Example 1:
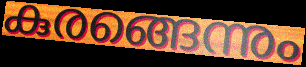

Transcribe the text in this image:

കുരങ്ങെന്നും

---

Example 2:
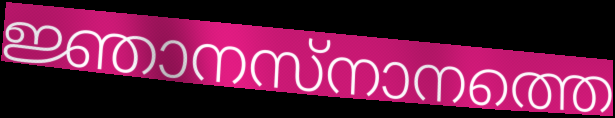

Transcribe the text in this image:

ജ്ഞാനസ്നാനത്തെ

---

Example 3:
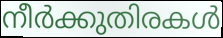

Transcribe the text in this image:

നീർക്കുതിരകൾ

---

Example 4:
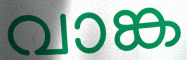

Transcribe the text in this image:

വാങ്ക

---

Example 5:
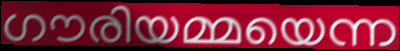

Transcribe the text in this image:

ഗൗരിയമ്മയെന്ന